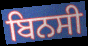
ਬਿਨਸੀ